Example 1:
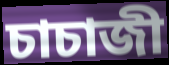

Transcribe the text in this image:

চাচাজী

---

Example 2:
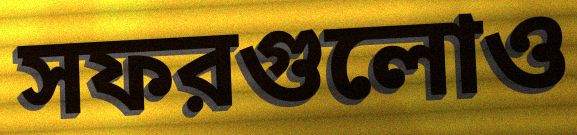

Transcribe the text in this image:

সফরগুলোও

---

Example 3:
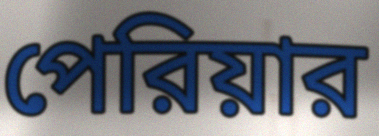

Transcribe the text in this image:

পেরিয়ার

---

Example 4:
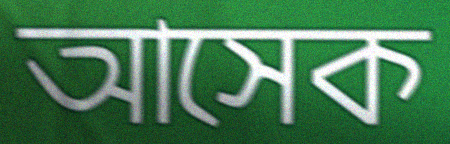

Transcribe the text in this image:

আসেক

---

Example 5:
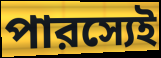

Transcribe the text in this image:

পারস্যেই